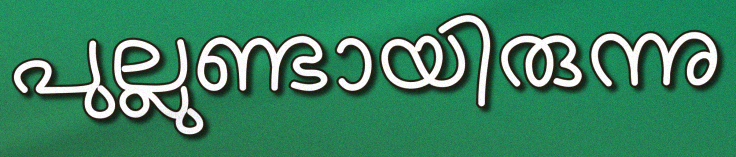
പുല്ലുണ്ടായിരുന്നു